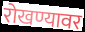
रोखण्यावर